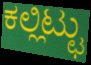
ಕಲ್ಲಿಟ್ಟು